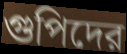
গুপিদের